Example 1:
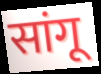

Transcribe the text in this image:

सांगू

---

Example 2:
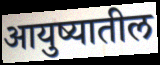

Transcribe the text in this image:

आयुष्यातील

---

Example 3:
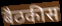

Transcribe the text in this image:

बैठकीस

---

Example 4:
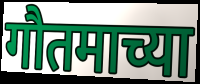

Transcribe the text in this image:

गौतमाच्या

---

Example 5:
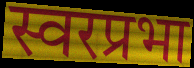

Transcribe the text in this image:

स्वरप्रभा